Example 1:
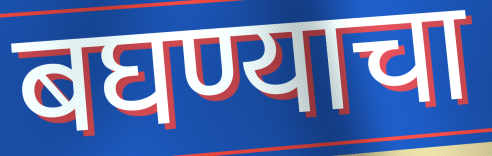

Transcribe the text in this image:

बघण्याचा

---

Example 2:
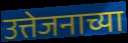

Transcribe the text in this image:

उत्तेजनाच्या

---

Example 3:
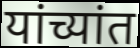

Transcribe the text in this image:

यांच्यांत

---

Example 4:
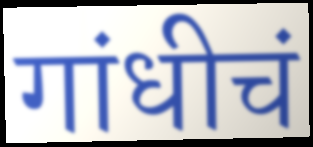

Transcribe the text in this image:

गांधीचं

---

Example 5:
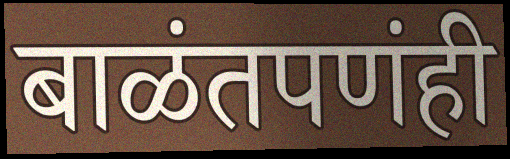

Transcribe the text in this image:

बाळंतपणंही